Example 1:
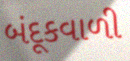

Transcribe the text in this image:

બંદૂકવાળી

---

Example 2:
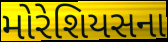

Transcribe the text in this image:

મોરેશિયસના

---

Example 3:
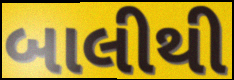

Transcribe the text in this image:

બાલીથી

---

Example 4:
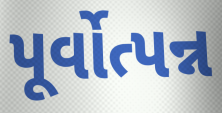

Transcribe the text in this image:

પૂર્વોત્પન્ન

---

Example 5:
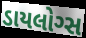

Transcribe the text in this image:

ડાયલોગ્સ